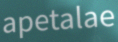
apetalae